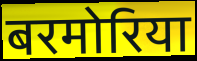
बरमोरिया